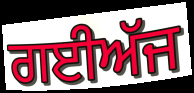
ਗਈਅੱਜ